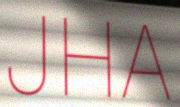
JHA